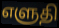
எளுதி